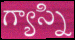
గ్యాస్ని